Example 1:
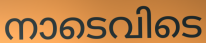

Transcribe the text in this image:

നാടെവിടെ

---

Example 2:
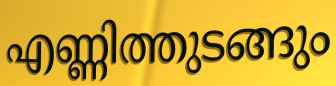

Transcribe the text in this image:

എണ്ണിത്തുടങ്ങും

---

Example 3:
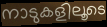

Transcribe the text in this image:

നാടുകളിലൂടെ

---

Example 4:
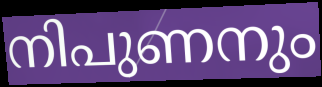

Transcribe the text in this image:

നിപുണനും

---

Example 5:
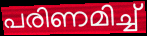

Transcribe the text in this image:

പരിണമിച്ച്